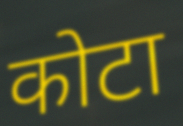
कोटा